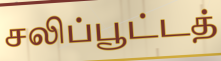
சலிப்பூட்டத்